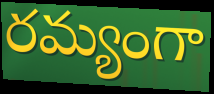
రమ్యంగా